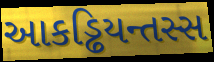
આકડ્ઢિયન્તસ્સ